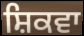
ਸ਼ਿਕਵਾ